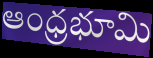
ఆంధ్రభూమి